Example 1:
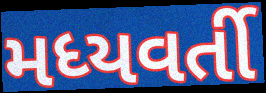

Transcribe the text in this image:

મધ્યવર્તી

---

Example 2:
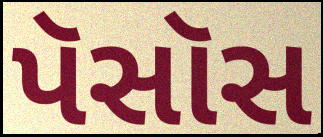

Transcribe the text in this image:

પૅસૉસ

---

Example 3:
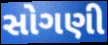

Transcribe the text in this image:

સોગણી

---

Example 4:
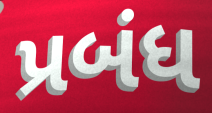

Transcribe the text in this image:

પ્રબંધ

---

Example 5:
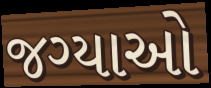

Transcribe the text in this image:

જગ્યાઓ